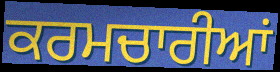
ਕਰਮਚਾਰੀਆਂ